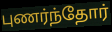
புணர்ந்தோர்